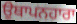
ਉਥਾਪਨਹਾਰਾ